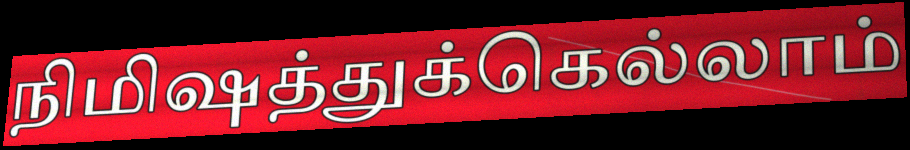
நிமிஷத்துக்கெல்லாம்